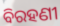
ବିରହଣୀ